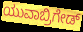
ಯುವಾಬ್ರಿಗೇಡ್